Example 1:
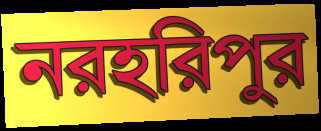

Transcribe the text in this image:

নরহরিপুর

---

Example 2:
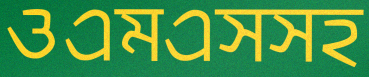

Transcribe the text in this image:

ওএমএসসহ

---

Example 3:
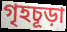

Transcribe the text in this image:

গৃহচূড়া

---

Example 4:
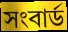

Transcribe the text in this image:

সংবার্ড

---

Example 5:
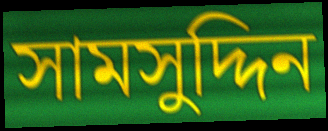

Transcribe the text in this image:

সামসুদ্দিন